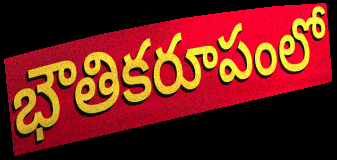
భౌతికరూపంలో